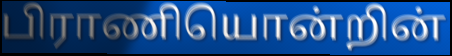
பிராணியொன்றின்